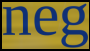
neg